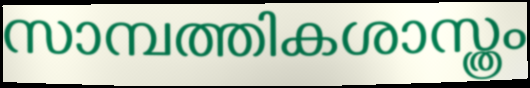
സാമ്പത്തികശാസ്ത്രം